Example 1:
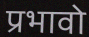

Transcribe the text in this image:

प्रभावो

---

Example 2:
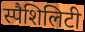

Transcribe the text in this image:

स्पैशिलिटी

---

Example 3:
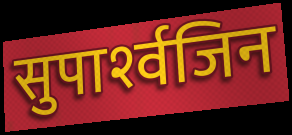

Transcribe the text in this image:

सुपार्श्वजिन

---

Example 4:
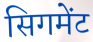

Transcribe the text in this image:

सिगमेंट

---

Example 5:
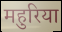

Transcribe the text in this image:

महुरिया